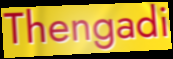
Thengadi